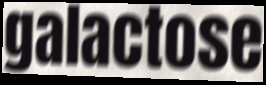
galactose